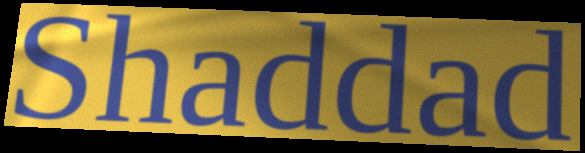
Shaddad